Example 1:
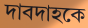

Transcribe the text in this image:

দাবদাহকে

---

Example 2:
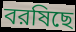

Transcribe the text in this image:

বরষিছে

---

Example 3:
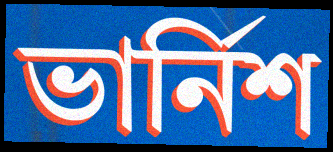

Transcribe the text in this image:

ভার্নিশ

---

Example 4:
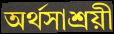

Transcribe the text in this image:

অর্থসাশ্রয়ী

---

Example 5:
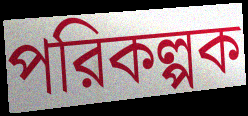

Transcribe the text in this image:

পরিকল্পক